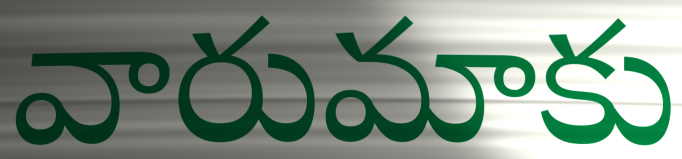
వారుమాకు